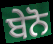
ਬੇਨੋ